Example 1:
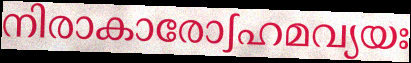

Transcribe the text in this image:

നിരാകാരോഽഹമവ്യയഃ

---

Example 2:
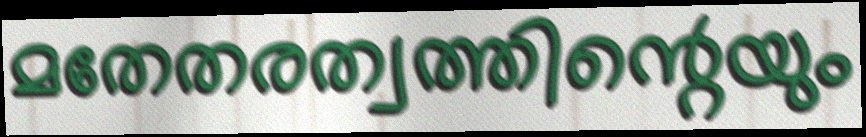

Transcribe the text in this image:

മതേതരത്വത്തിന്റെയും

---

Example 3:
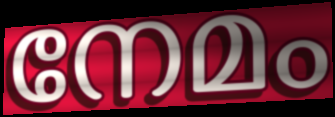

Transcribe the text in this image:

നേമം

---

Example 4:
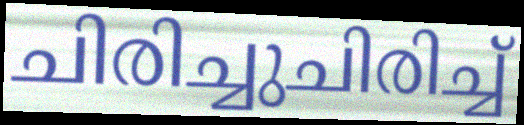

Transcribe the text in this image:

ചിരിച്ചുചിരിച്ച്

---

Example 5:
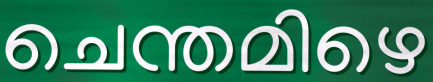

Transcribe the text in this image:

ചെന്തമിഴെ